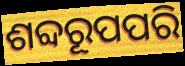
ଶବ୍ଦରୂପପରି